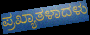
ಪ್ರಖ್ಯಾತಳಾದಳು